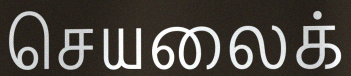
செயலைக்